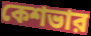
কেশভার